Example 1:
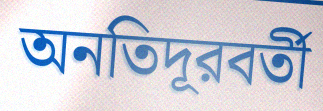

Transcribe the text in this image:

অনতিদূরবর্তী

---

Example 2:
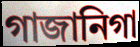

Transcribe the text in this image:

গাজানিগা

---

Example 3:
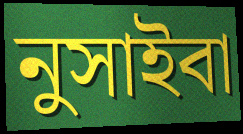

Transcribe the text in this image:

নুসাইবা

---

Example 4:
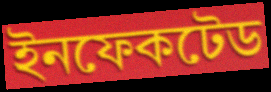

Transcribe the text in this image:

ইনফেকটেড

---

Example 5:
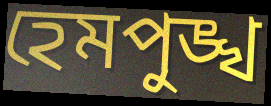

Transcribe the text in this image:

হেমপুঙ্খ